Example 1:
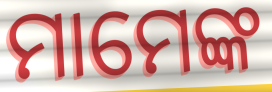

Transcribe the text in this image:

ମାମେଙ୍କ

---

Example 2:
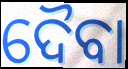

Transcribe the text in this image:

ଦୈବା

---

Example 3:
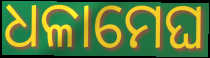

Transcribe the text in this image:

ଧଳାମେଘ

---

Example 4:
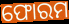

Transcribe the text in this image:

ଫୋରମ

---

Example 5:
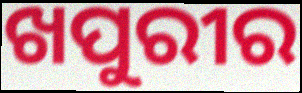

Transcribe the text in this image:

ଖପୁରୀର